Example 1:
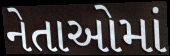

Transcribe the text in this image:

નેતાઓમાં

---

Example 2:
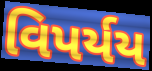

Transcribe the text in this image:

વિપર્યય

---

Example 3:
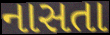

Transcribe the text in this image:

નાસતા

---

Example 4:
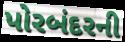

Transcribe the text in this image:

પોરબંદરની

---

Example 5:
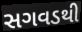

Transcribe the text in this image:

સગવડથી